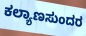
ಕಲ್ಯಾಣಸುಂದರ